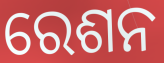
ରେଶନ